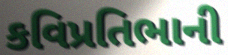
કવિપ્રતિભાની